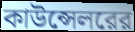
কাউন্সেলরের